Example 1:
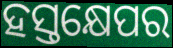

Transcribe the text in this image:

ହସ୍ତକ୍ଷେପର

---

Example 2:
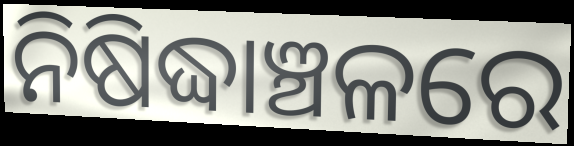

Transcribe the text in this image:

ନିଷିଦ୍ଧାଞ୍ଚଳରେ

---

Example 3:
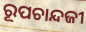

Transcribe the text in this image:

ରୂପଚାନ୍ଦଜୀ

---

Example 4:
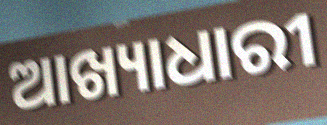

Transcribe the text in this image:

ଆଖ୍ୟାଧାରୀ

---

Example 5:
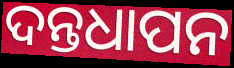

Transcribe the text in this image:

ଦନ୍ତଧାପନ